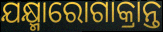
ଯକ୍ଷ୍ମାରୋଗାକ୍ରାନ୍ତ